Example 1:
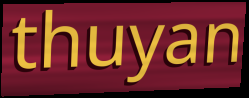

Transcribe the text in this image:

thuyan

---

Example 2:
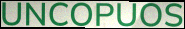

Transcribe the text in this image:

UNCOPUOS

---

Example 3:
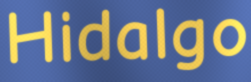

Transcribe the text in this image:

Hidalgo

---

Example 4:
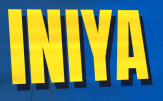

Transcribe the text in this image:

INIYA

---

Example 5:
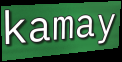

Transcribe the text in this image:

kamay